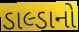
ડાલ્ડાનો